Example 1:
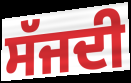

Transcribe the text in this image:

ਸੱਜਦੀ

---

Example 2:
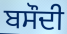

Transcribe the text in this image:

ਬਸੌਦੀ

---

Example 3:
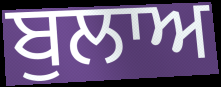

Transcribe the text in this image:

ਬੁਲਾਅ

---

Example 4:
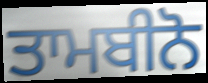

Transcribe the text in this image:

ਤਾਮਬੀਨੋ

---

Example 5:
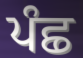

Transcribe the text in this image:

ਪੰਛ